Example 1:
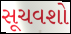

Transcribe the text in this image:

સૂચવશો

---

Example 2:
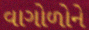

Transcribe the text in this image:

વાગોળોને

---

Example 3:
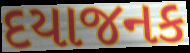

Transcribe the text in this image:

દયાજનક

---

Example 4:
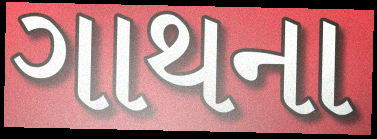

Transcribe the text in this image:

ગાથના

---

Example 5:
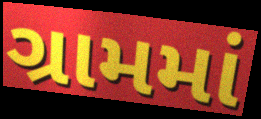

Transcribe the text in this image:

ગ્રામમાં